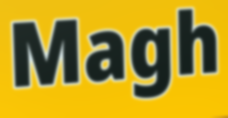
Magh